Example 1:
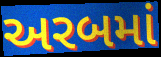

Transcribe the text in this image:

અરબમાં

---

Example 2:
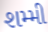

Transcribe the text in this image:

શમ્મી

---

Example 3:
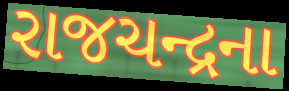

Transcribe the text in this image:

રાજચન્દ્રના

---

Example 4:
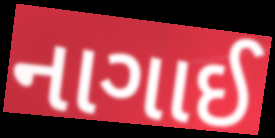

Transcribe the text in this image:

નાગાઈ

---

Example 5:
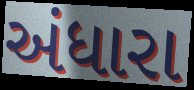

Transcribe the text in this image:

અંધારા